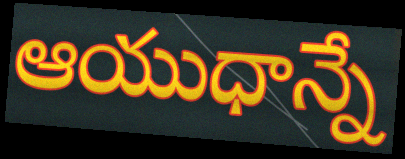
ఆయుధాన్నే